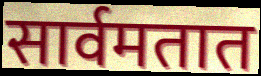
सार्वमतात